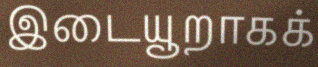
இடையூறாகக்